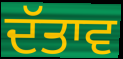
ਦੱਤਾਵ